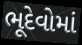
ભૂદેવોમાં